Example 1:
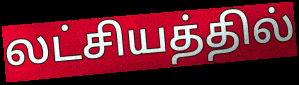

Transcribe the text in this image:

லட்சியத்தில்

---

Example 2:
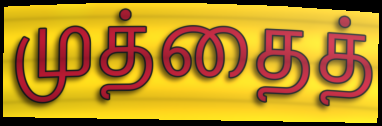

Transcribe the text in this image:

முத்தைத்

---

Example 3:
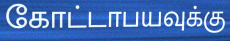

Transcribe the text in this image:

கோட்டாபயவுக்கு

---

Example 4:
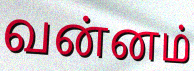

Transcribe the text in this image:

வன்னம்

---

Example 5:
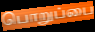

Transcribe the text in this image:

பொறுப்பை